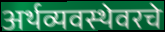
अर्थव्यवस्थेवरचे